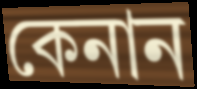
কেনান